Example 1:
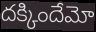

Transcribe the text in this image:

దక్కిందేమో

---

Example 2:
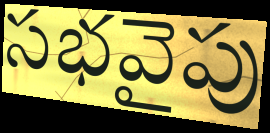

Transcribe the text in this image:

సభవైపు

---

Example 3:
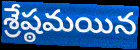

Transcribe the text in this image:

శ్రేష్ఠమయిన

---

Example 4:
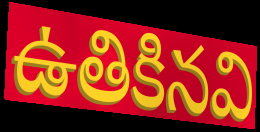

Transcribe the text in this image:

ఉతికినవి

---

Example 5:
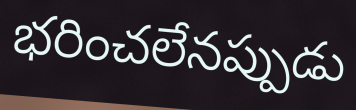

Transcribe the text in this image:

భరించలేనప్పుడు